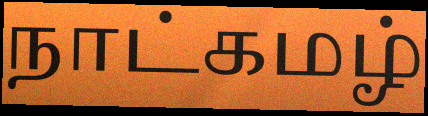
நாட்கமழ்